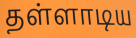
தள்ளாடிய